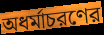
অধর্মাচরণের